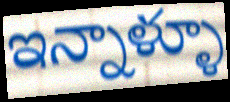
ఇన్నాళ్ళూ